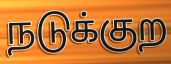
நடுக்குற